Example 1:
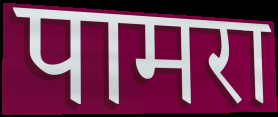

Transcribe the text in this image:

पामरा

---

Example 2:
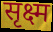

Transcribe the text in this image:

सृक्ष्म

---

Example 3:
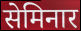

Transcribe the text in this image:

सेमिनार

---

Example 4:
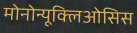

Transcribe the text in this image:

मोनोन्यूक्लिओसिस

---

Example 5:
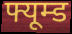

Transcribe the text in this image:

फ्यूम्ड